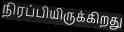
நிரப்பியிருக்கிறது